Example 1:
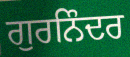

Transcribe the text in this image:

ਗੁਰਨਿੰਦਰ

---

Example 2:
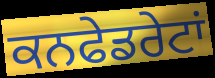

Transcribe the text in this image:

ਕਨਫੇਡਰੇਟਾਂ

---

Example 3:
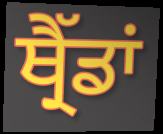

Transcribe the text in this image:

ਥ੍ਰੈੱਡਾਂ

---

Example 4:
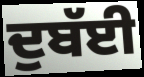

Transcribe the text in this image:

ਦੁਬੱਈ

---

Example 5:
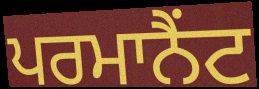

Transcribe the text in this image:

ਪਰਮਾਨੈਂਟ